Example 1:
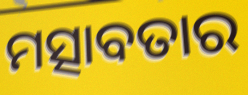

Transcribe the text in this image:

ମତ୍ସାବତାର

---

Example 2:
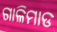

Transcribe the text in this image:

ଗାଳିମାଡ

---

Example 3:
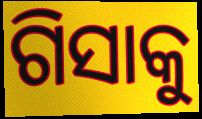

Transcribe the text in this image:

ଗିସାକୁ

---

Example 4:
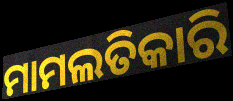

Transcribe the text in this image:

ମାମଲତିକାରି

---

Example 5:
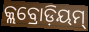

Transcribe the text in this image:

କ୍ଲବ୍ରୋଡ଼ିୟମ୍